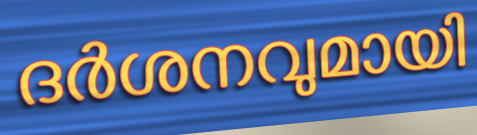
ദർശനവുമായി